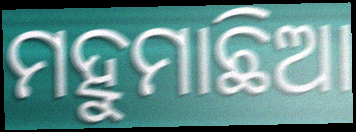
ମହୁମାଛିଆ